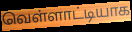
வெள்ளாட்டியாக